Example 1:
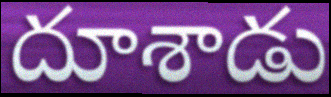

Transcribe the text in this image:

దూశాడు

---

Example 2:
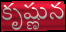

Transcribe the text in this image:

కృష్ణున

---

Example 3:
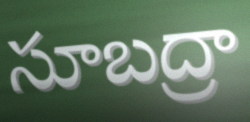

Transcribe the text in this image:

సూబద్రా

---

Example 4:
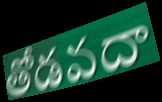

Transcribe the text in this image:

తోడవదా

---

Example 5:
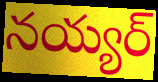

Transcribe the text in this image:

నయ్యర్